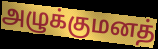
அழுக்குமனத்